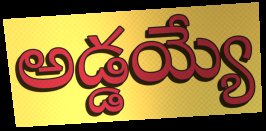
అడ్డయ్యే